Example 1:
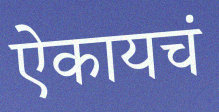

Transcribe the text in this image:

ऐकायचं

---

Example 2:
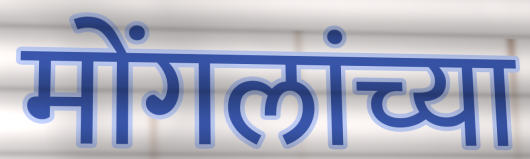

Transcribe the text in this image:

मोंगलांच्या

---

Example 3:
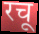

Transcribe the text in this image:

रचू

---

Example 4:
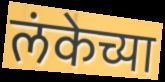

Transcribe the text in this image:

लंकेच्या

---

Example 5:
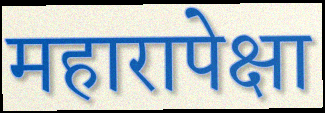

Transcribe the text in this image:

महारापेक्षा